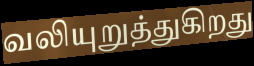
வலியுறுத்துகிறது